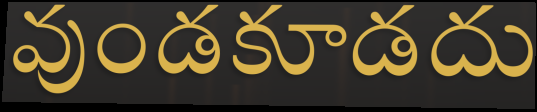
వుండకూడదు